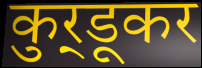
कुर्डूकर